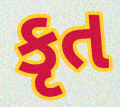
કૃત